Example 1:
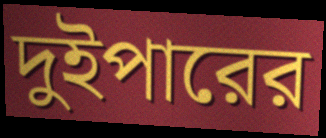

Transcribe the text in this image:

দুইপারের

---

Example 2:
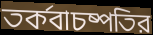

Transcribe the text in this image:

তর্কবাচষ্পতির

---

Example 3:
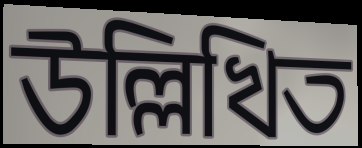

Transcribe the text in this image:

উল্লিখিত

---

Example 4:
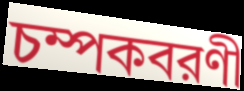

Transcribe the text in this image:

চম্পকবরণী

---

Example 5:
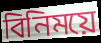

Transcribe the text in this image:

বিনিময়ে